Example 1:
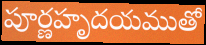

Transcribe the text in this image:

పూర్ణహృదయముతో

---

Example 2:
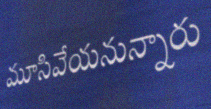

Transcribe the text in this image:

మూసివేయనున్నారు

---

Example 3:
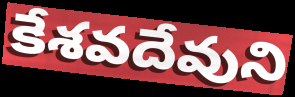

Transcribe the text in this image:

కేశవదేవుని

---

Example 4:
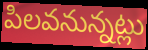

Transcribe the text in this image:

పిలవనున్నట్లు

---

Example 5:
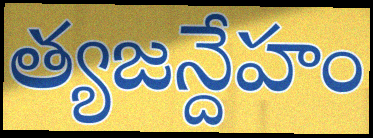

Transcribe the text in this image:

త్యజన్దేహం